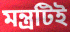
মন্ত্রটিই